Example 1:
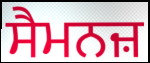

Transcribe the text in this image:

ਸੈਮਨਜ਼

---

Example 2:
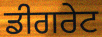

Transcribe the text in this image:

ਡੀਗਰੇਟ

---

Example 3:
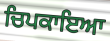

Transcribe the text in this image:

ਚਿਪਕਾਇਆ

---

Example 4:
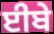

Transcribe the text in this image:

ਈਬੇ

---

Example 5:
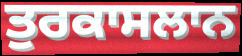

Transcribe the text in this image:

ਤੁਰਕਾਸਲਾਨ